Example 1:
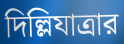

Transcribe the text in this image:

দিল্লিযাত্রার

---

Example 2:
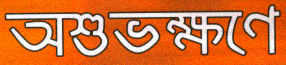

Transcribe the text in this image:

অশুভক্ষণে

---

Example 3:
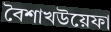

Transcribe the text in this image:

বৈশাখউয়েফা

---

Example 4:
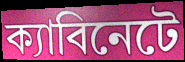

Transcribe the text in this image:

ক্যাবিনেটে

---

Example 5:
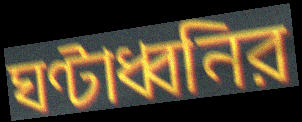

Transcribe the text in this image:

ঘণ্টাধ্বনির